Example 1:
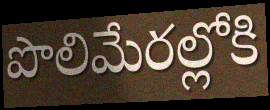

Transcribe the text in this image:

పొలిమేరల్లోకి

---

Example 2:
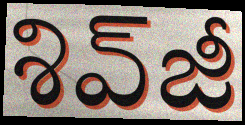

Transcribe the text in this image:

శివ్‌జీ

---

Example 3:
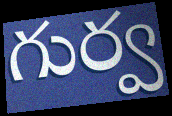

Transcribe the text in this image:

గుర్వ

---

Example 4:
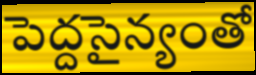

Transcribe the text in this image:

పెద్దసైన్యంతో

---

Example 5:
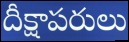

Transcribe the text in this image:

దీక్షాపరులు